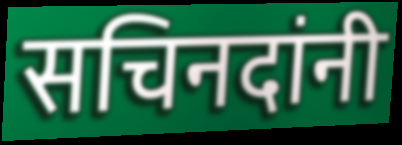
सचिनदांनी